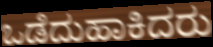
ಒಡೆದುಹಾಕಿದರು